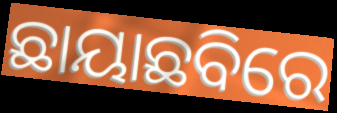
ଛାୟାଛବିରେ